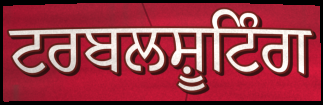
ਟਰਬਲਸ਼ੂਟਿੰਗ